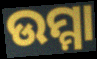
ଉମ୍ମା